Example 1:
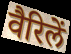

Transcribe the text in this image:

वैरिलें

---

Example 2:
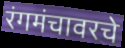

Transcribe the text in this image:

रंगमंचावरचे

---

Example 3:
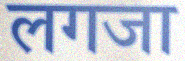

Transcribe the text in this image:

लगजा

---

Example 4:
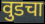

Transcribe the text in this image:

वुडचा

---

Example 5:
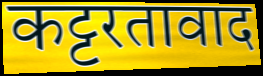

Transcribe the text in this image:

कट्टरतावाद